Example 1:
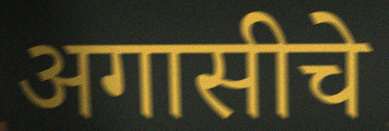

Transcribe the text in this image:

अगासीचे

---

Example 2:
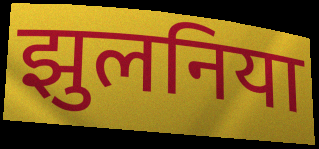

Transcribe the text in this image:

झुलनिया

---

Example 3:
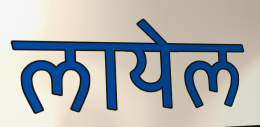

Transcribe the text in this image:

लायेल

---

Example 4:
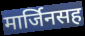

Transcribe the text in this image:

मार्जिनसह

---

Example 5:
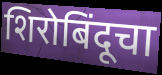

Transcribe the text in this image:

शिरोबिंदूचा